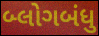
બ્લોગબંધુ